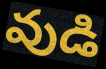
వుడి